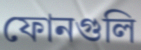
ফোনগুলি